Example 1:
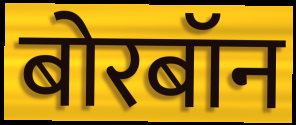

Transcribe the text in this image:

बोरबॉन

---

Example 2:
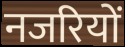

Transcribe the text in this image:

नजरियों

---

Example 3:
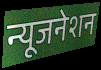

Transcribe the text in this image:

न्यूजनेशन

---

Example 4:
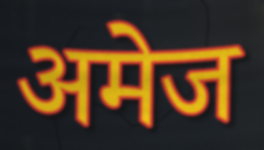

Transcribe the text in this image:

अमेज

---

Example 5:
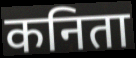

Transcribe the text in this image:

कनिता